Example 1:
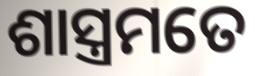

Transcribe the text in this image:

ଶାସ୍ତ୍ରମତେ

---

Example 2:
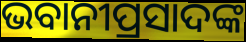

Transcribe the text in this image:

ଭବାନୀପ୍ରସାଦଙ୍କ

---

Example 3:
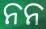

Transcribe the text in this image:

ନନ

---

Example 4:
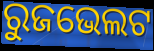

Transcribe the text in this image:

ରୁଜଭେଲଟ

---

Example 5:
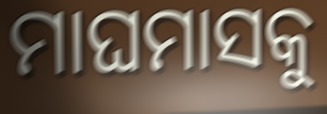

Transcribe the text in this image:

ମାଘମାସକୁ